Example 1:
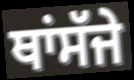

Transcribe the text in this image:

ਥਾਂਸੱਜੇ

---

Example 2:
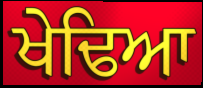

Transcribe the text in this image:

ਖੇਢਿਆ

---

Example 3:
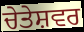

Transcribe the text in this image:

ਚੇਤੇਸ਼ਵਰ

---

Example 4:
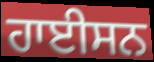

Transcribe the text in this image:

ਹਾਈਸਨ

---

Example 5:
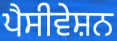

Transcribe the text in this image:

ਪੈਸੀਵੇਸ਼ਨ